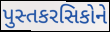
પુસ્તકરસિકોને